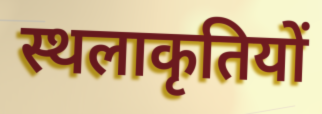
स्थलाकृतियों